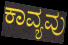
ಕಾವ್ಯವು